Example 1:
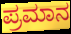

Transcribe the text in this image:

ಪ್ರಮಾನ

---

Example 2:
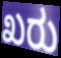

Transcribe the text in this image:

ಖರು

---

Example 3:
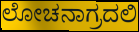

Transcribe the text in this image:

ಲೋಚನಾಗ್ರದಲಿ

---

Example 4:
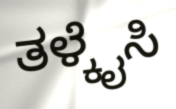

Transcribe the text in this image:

ತಳ್ಕೈಸಿ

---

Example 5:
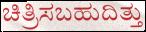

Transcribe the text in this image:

ಚಿತ್ರಿಸಬಹುದಿತ್ತು